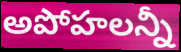
అపోహలన్నీ